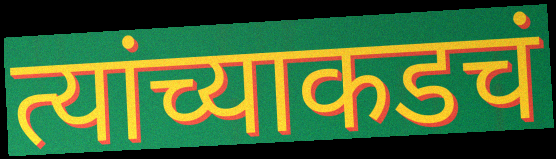
त्यांच्याकडचं